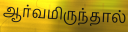
ஆர்வமிருந்தால்